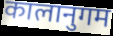
कालानुगम